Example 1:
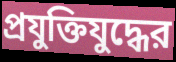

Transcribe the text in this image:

প্রযুক্তিযুদ্ধের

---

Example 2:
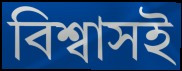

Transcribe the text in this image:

বিশ্বাসই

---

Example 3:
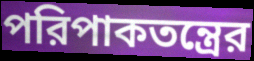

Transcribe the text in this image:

পরিপাকতন্ত্রের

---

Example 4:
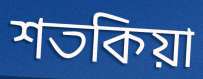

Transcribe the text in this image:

শতকিয়া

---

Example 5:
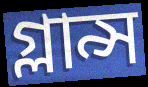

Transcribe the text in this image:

গ্লান্স